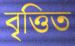
বৃত্তিত